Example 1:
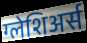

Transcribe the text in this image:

ग्लेशिअर्स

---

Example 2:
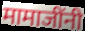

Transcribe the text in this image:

मामाजींनी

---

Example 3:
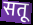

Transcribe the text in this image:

सतू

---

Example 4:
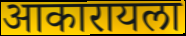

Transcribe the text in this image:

आकारायला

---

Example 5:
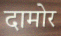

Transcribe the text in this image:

दामोर